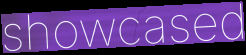
showcased